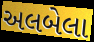
અલબેલા